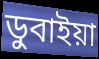
ডুবাইয়া